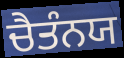
ਚੈਤੰਨਯ